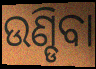
ଉଣ୍ଡିବା